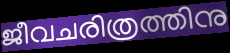
ജീവചരിത്രത്തിനു